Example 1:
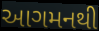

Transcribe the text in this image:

આગમનથી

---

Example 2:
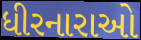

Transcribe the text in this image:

ધીરનારાઓ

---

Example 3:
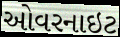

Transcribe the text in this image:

ઓવરનાઇટ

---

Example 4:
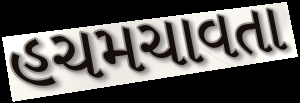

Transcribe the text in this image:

હચમચાવતા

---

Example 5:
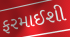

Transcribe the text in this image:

ફરમાઈશી